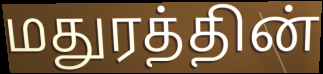
மதுரத்தின்